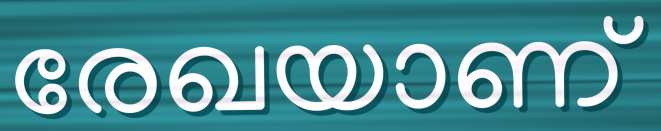
രേഖയാണ്